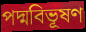
পদ্মবিভূষণ